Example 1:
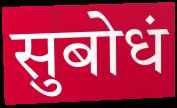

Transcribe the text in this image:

सुबोधं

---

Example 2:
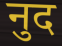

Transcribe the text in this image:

नुद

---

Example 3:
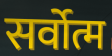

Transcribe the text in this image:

सर्वोत्म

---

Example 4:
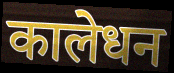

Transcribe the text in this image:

कालेधन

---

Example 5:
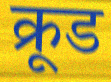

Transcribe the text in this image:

क्रूड